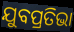
ଯୁବପ୍ରତିଭା